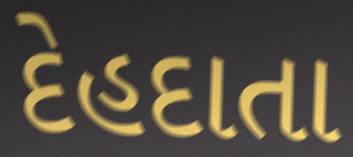
દેહદાતા